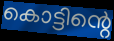
കൊട്ടിന്റെ